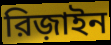
রিজ়াইন